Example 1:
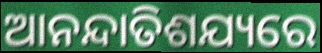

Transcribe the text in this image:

ଆନନ୍ଦାତିଶଯ୍ୟରେ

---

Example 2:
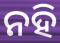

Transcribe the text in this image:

ନହି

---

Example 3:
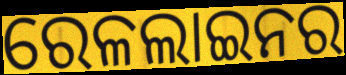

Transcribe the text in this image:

ରେଳଲାଇନର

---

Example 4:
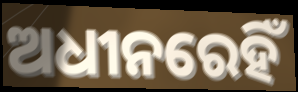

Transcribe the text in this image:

ଅଧୀନରେହିଁ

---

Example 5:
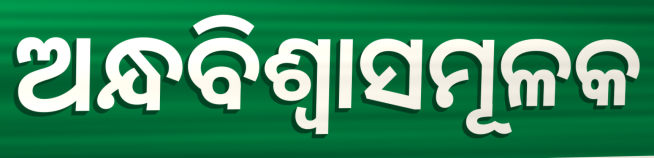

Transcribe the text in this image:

ଅନ୍ଧବିଶ୍ୱାସମୂଳକ